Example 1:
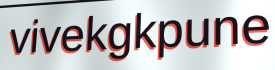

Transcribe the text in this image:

vivekgkpune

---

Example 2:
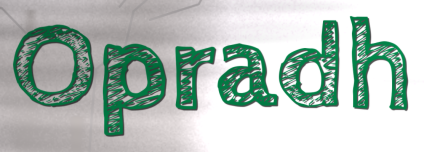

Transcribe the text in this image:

Opradh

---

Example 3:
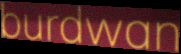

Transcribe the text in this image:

burdwan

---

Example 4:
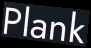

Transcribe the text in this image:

Plank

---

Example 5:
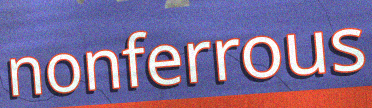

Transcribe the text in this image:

nonferrous